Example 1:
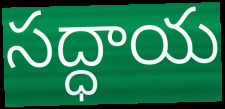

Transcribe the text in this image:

సద్ధాయ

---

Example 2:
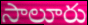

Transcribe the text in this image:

సాలూరు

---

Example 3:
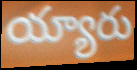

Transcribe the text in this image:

య్యారు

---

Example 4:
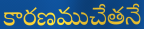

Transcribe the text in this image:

కారణముచేతనే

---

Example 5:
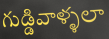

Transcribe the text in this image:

గుడ్డివాళ్ళలా